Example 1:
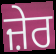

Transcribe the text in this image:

ਜ਼ੇਰ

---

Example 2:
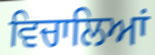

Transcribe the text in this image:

ਵਿਚਾਲਿਆਂ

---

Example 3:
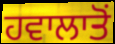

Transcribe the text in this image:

ਹਵਾਲਾਤੋਂ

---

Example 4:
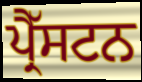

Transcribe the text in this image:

ਪ੍ਰੈੱਸਟਨ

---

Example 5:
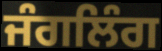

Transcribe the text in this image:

ਜੰਗਲਿੰਗ